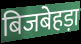
बिजबेहड़ा